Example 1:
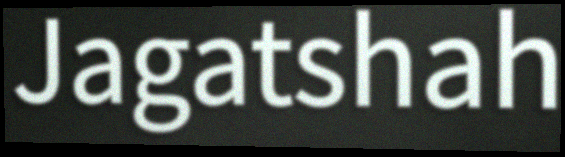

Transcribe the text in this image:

Jagatshah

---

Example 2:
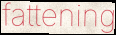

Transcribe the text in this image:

fattening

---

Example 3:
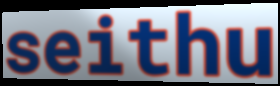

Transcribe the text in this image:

seithu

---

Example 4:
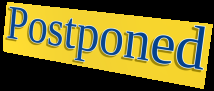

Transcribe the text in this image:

Postponed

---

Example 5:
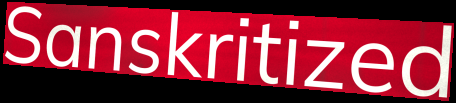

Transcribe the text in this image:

Sanskritized